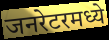
जनरेटरमध्ये